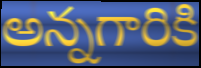
అన్నగారికి